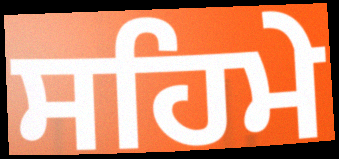
ਸਹਿਮੇ